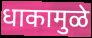
धाकामुळे